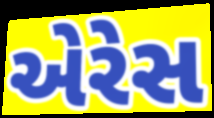
એરેસ